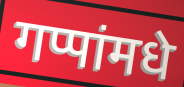
गप्पांमधे